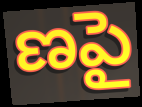
ణపై